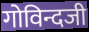
गोविन्दजी